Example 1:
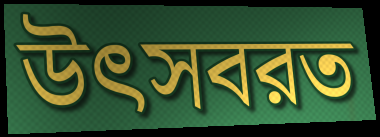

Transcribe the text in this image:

উৎসবরত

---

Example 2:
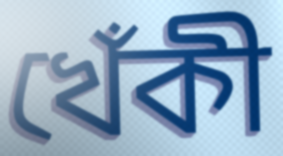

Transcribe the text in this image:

খেঁকী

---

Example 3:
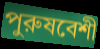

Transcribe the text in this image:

পুরুষবেশী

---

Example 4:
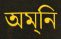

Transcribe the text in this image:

অম্‌নি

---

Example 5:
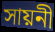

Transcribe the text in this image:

সায়নী